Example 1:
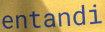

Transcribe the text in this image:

entandi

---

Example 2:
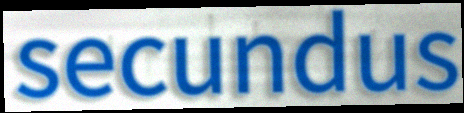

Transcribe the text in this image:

secundus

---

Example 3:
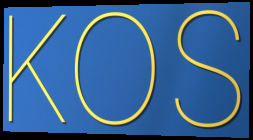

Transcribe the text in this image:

KOS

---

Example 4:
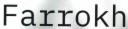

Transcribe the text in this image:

Farrokh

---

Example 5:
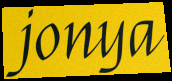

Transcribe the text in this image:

jonya